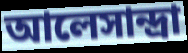
আলেসান্দ্রা